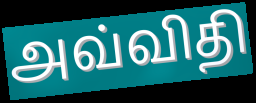
அவ்விதி